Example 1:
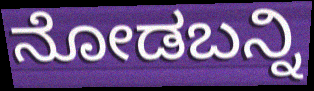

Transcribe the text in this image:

ನೋಡಬನ್ನಿ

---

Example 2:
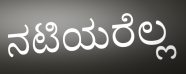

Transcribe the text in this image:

ನಟಿಯರೆಲ್ಲ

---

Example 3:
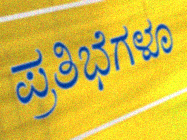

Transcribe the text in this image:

ಪ್ರತಿಭೆಗಳೂ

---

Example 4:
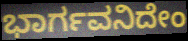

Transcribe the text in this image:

ಭಾರ್ಗವನಿದೇಂ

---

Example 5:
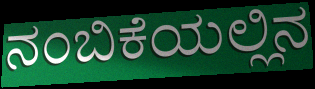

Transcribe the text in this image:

ನಂಬಿಕೆಯಲ್ಲಿನ